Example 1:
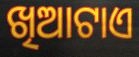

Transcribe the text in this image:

ଖିଆଟାଏ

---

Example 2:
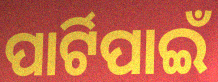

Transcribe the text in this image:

ପାର୍ଟିପାଇଁ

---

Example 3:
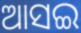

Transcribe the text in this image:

ଆସଇ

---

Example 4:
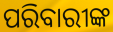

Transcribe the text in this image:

ପରିବାରୀଙ୍କ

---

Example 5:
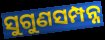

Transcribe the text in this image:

ସୁଗୁଣସମ୍ପନ୍ନ